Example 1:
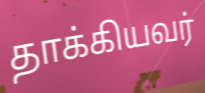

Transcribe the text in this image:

தாக்கியவர்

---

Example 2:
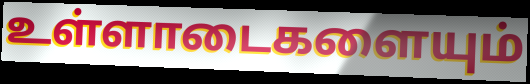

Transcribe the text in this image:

உள்ளாடைகளையும்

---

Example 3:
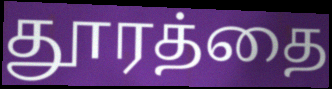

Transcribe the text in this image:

தூரத்தை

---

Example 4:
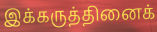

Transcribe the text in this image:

இக்கருத்தினைக்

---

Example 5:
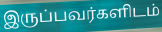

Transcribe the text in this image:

இருப்பவர்களிடம்